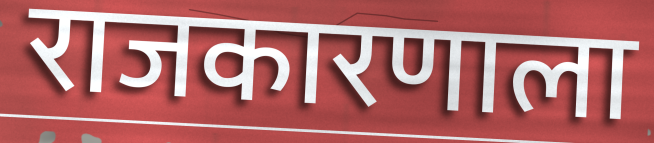
राजकारणाला